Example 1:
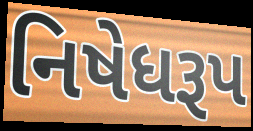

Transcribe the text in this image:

નિષેધરૂપ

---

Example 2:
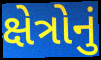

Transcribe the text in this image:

ક્ષેત્રોનું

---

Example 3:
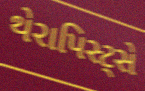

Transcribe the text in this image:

થેરાપિસ્ટ્સે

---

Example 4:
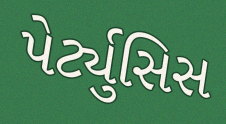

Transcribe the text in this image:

પેર્ટ્યુસિસ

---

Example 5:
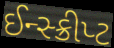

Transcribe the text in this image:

ઈન્સ્ક્રીપ્ટ